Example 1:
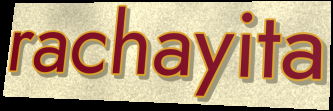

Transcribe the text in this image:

rachayita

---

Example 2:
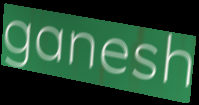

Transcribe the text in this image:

ganesh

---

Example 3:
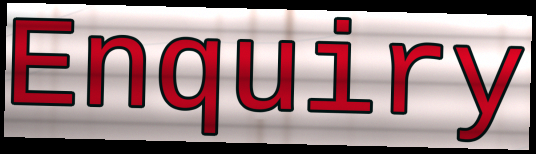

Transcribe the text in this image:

Enquiry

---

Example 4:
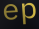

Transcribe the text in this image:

ep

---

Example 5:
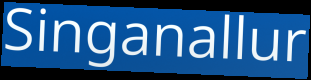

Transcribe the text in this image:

Singanallur